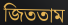
জিততাম